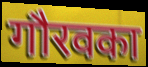
गौरवका